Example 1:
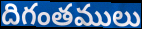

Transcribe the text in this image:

దిగంతములు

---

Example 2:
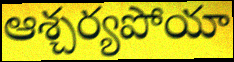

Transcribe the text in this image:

ఆశ్చర్యపోయా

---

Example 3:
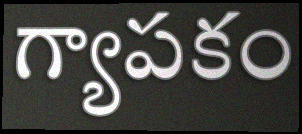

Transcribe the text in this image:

గ్యాపకం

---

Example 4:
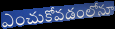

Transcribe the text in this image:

ఎంచుకోవడంలోనూ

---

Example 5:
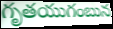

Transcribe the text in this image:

గృతయుగంబున